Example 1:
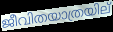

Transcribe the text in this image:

ജീവിതയാത്രയില്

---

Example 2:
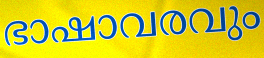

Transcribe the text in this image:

ഭാഷാവരവും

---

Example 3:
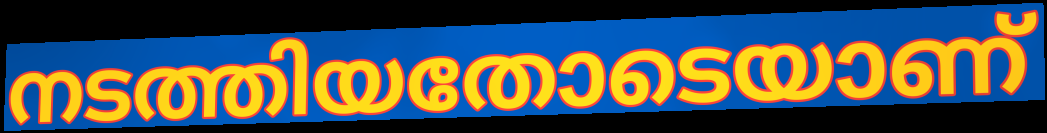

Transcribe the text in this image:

നടത്തിയതോടെയാണ്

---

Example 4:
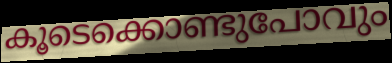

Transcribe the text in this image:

കൂടെക്കൊണ്ടുപോവും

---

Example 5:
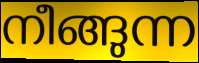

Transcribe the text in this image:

നീങ്ങുന്ന